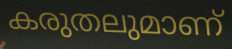
കരുതലുമാണ്